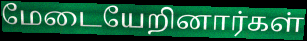
மேடையேறினார்கள்